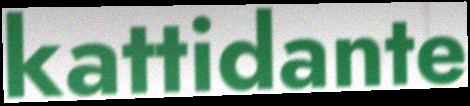
kattidante